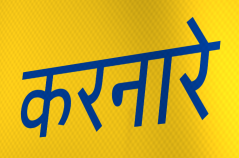
करनारे